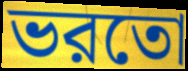
ভরতো